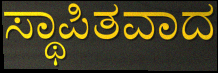
ಸ್ಥಾಪಿತವಾದ